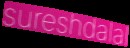
sureshdalal